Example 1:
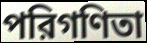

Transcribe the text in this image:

পরিগণিতা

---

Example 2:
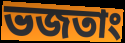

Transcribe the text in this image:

ভজতাং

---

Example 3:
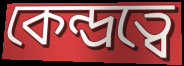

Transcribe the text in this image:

কেন্দ্রত্বে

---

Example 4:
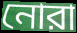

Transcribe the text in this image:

নোরা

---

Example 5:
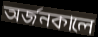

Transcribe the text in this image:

অর্জনকালে